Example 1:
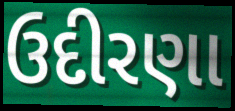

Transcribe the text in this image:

ઉદીરણા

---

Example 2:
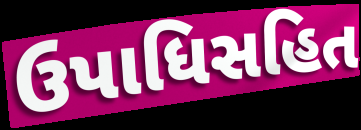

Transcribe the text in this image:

ઉપાધિસહિત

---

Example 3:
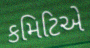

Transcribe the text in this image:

કમિટિએ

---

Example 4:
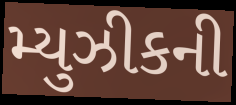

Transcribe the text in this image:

મ્યુઝીકની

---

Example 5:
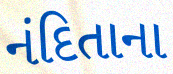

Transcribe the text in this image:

નંદિતાના